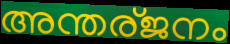
അന്തര്ജനം